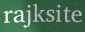
rajksite